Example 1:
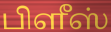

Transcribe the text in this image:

பிளீஸ்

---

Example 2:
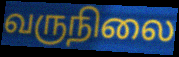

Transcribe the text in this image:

வருநிலை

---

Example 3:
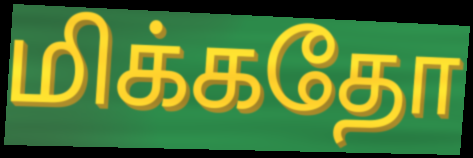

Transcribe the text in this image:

மிக்கதோ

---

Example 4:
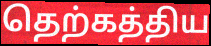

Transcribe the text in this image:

தெற்கத்திய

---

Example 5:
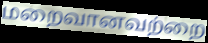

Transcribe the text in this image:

மறைவானவற்றை